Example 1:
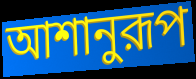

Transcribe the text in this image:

আশানুরূপ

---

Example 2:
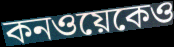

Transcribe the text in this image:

কনওয়েকেও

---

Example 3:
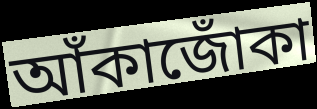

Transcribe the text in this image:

আঁকাজোঁকা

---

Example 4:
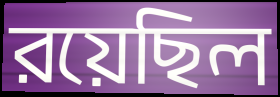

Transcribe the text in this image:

রয়েছিল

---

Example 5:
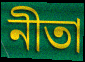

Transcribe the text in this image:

নীতা